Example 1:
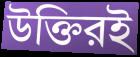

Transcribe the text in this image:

উক্তিরই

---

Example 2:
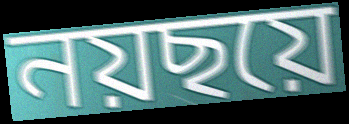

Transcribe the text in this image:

নয়ছয়ে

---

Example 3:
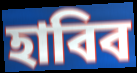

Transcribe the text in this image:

হাবিব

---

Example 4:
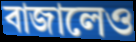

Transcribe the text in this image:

বাজালেও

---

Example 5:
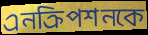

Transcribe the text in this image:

এনক্রিপশনকে